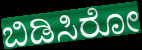
ಬಿಡಿಸಿರೋ